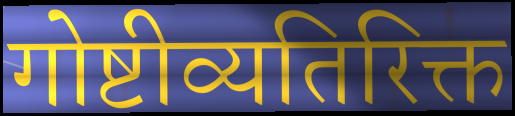
गोष्टीव्यतिरिक्त